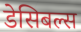
डेसिबल्स